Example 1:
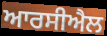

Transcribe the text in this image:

ਆਰਸੀਐਲ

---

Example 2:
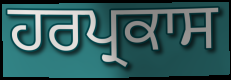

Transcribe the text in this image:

ਹਰਪ੍ਰਕਾਸ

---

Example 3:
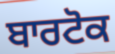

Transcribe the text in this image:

ਬਾਰਟੋਕ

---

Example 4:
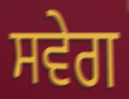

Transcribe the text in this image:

ਸਵੇਗ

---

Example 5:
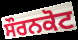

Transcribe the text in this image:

ਸੌਰਨਕੋਟ